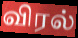
விரல்